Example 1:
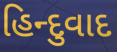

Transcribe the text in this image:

હિન્દુવાદ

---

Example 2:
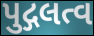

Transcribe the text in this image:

પુદ્ગલત્વ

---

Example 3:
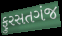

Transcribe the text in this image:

ફુરસતગંજ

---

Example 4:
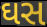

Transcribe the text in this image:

ઘસ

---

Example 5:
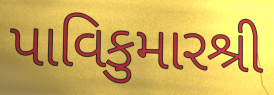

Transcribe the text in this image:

પાવિકુમારશ્રી